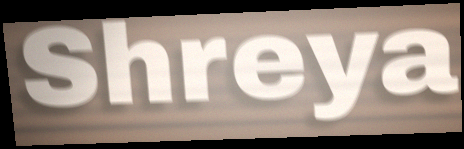
Shreya